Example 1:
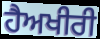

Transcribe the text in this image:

ਹੈਅਖੀਰੀ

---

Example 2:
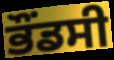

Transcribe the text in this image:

ਭੌਂਡਸੀ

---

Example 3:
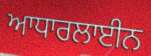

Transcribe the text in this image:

ਆਧਾਰਲਾਈਨ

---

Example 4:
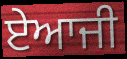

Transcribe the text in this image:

ਏਆਜੀ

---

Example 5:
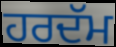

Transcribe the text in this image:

ਹਰਦੱਮ